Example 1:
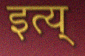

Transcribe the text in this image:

इत्य्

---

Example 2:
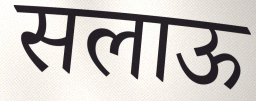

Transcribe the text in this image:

सलाऊ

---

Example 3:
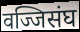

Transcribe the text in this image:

वज्जिसंघ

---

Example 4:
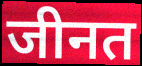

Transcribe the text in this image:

जीनत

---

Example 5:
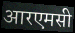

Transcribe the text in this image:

आरएमसी